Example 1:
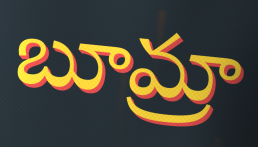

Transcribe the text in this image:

బూమ్రా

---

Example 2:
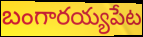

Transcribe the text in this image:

బంగారయ్యపేట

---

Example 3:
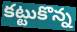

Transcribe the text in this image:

కట్టుకొన్న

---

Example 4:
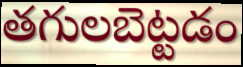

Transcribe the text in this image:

తగులబెట్టడం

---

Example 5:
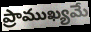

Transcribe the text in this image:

ప్రాముఖ్యమే